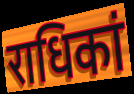
राधिकां